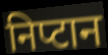
निप्टान